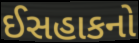
ઈસહાકનો